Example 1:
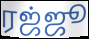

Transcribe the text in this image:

ரஜ்ஜூ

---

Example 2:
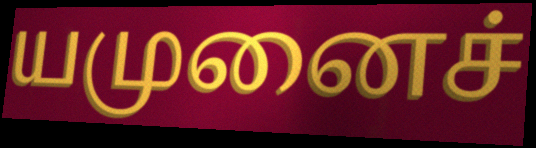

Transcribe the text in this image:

யமுனைச்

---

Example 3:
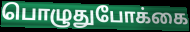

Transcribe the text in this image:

பொழுதுபோக்கை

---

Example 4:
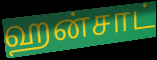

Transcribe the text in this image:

ஹன்சாட்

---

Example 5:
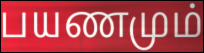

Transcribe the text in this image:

பயணமும்